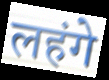
लहंगे